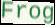
Frog